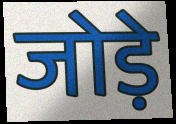
जोड़े